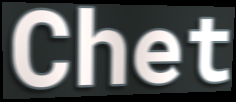
Chet